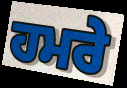
ਹਮਰੇ